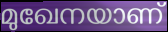
മുഖേനയാണ്